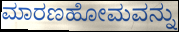
ಮಾರಣಹೋಮವನ್ನು